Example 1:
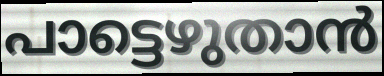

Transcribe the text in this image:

പാട്ടെഴുതാൻ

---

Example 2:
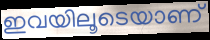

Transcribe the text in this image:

ഇവയിലൂടെയാണ്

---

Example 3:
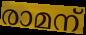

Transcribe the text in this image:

രാമന്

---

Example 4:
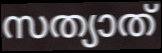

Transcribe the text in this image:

സത്യാത്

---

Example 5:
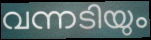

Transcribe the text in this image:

വന്നടിയും